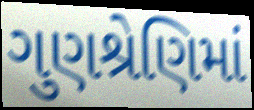
ગુણશ્રેણિમાં